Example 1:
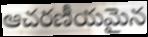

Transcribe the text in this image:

ఆచరణీయమైన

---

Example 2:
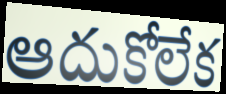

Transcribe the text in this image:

ఆదుకోలేక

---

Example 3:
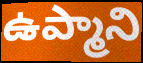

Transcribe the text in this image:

ఉప్మాని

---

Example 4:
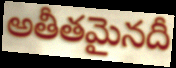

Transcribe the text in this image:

అతీతమైనదీ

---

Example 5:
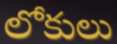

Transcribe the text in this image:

లోకులు